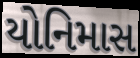
યોનિમાસ